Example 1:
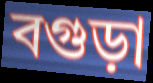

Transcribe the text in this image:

বগুড়া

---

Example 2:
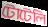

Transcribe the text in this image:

টোটেলি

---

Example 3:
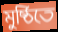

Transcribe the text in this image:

মুষ্ঠিতে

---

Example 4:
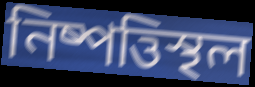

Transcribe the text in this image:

নিষ্পত্তিস্থল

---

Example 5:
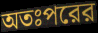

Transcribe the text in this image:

অতঃপরের